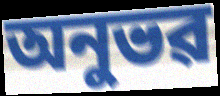
অনুভৱ